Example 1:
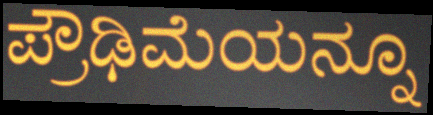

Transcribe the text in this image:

ಪ್ರೌಢಿಮೆಯನ್ನೂ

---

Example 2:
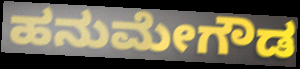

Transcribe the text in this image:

ಹನುಮೇಗೌಡ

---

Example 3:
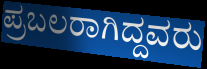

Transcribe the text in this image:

ಪ್ರಬಲರಾಗಿದ್ದವರು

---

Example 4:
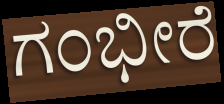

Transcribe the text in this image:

ಗಂಭೀರೆ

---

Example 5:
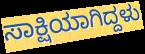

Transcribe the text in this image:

ಸಾಕ್ಷಿಯಾಗಿದ್ದಳು